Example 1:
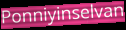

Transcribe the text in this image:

Ponniyinselvan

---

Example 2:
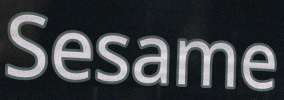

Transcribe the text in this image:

Sesame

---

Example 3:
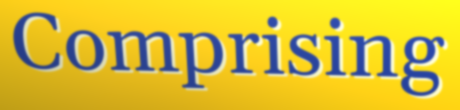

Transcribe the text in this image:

Comprising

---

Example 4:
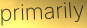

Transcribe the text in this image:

primarily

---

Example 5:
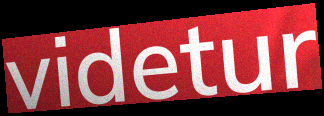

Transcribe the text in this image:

videtur